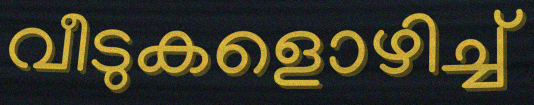
വീടുകളൊഴിച്ച്